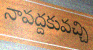
నావద్దకువచ్చి